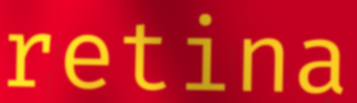
retina